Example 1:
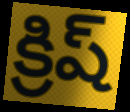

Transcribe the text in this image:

క్రిష్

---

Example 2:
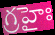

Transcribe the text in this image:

గ్రహైః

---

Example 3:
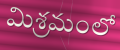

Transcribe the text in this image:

మిశ్రమంలో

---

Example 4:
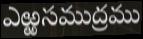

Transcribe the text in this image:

ఎఱ్ఱసముద్రము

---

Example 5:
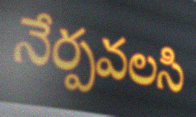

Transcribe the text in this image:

నేర్పవలసి